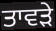
ਤਾਵੜੇ